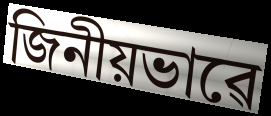
জিনীয়ভাৱে